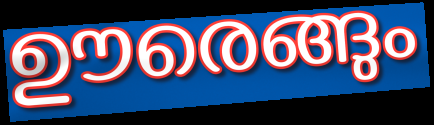
ഊരെങ്ങും